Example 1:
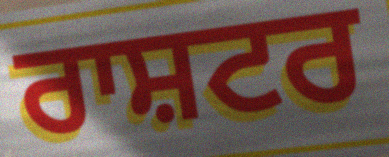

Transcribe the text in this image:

ਰਾਸ਼ਟਰ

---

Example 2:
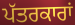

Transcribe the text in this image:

ਪੱਤਰਕਾਰਾਂ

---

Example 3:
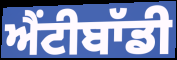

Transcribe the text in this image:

ਐਂਟੀਬਾੱਡੀ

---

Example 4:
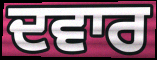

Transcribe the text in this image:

ਦਵਾਰ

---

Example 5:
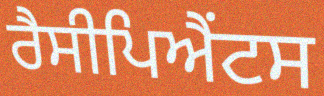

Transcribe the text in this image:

ਰੈਸੀਪਿਐਂਟਸ